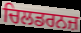
ਚਿਲਡਰਨਜ਼